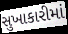
સુખાકારીમાં